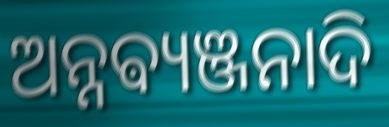
ଅନ୍ନଵ୍ୟଞ୍ଜନାଦି